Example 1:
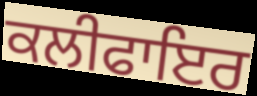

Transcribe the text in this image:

ਕਲੀਫਾਇਰ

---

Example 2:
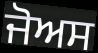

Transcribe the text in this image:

ਜੋਅਸ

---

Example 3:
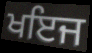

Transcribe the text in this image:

ਖਇਜ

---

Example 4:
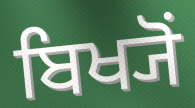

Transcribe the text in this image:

ਬਿਖ੍ਯੋਂ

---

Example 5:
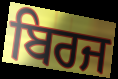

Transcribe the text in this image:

ਬਿਰਜ